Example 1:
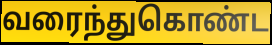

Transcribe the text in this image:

வரைந்துகொண்ட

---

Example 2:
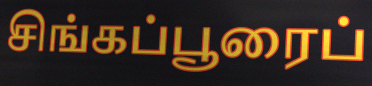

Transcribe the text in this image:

சிங்கப்பூரைப்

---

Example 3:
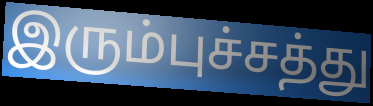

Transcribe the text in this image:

இரும்புச்சத்து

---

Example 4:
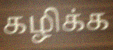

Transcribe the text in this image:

கழிக்க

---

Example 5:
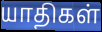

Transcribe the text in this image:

யாதிகள்